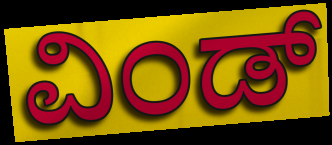
ವಿಂಡ್